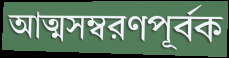
আত্মসম্বরণপূর্বক